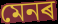
মেনৰ